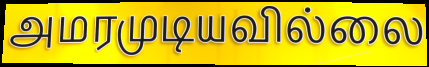
அமரமுடியவில்லை